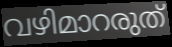
വഴിമാറരുത്